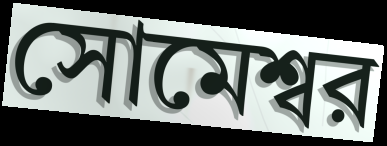
সোমেশ্বর